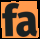
fa